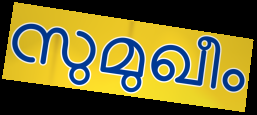
സുമുഖീം